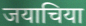
जयाचिया